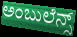
ಅಂಬುಲೆನ್ಸ್